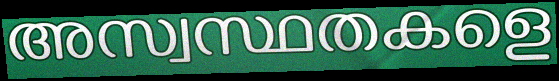
അസ്വസ്ഥതകളെ